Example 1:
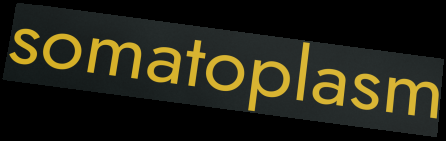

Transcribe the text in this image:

somatoplasm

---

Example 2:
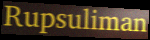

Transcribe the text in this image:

Rupsuliman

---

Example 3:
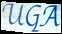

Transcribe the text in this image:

UGA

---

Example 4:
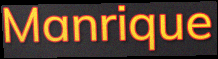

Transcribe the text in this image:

Manrique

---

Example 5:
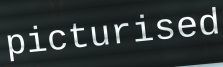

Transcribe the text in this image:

picturised